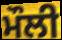
ਮੌਲੀ